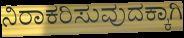
ನಿರಾಕರಿಸುವುದಕ್ಕಾಗಿ